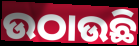
ଉଠାଉଛି